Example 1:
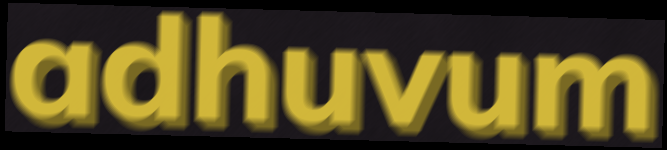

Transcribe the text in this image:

adhuvum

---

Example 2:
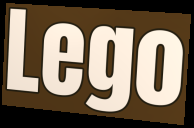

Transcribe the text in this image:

Lego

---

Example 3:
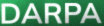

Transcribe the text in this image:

DARPA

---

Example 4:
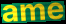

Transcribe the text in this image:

ame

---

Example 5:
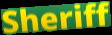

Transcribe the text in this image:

Sheriff